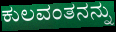
ಕುಲವಂತನನ್ನು